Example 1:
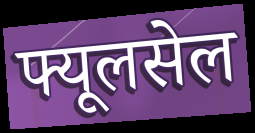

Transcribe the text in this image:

फ्यूलसेल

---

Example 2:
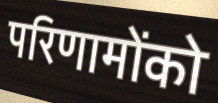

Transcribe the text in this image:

परिणामोंको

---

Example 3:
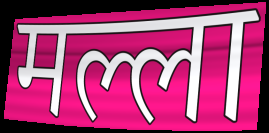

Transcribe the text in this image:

मल्‍ला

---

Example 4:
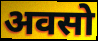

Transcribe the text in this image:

अवसो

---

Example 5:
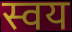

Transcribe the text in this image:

स्वय